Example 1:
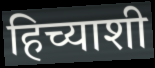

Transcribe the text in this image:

हिच्याशी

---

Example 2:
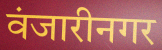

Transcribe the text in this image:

वंजारीनगर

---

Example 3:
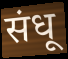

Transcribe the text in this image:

संधू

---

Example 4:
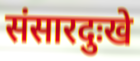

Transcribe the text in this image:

संसारदुःखे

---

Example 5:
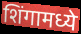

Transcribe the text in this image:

शिंगामध्ये